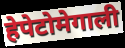
हेपेटोमेगाली